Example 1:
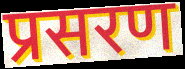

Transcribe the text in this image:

प्रसरण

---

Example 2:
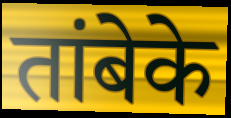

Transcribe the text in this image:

तांबेके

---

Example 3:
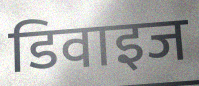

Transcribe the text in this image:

डिवाइज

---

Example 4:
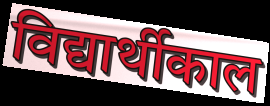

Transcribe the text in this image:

विद्यार्थीकाल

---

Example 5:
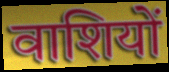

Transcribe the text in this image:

वाशियों